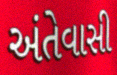
અંતેવાસી